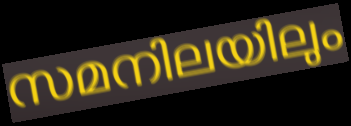
സമനിലയിലും